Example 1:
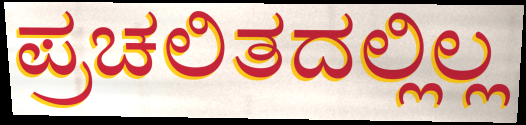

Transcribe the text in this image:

ಪ್ರಚಲಿತದಲ್ಲಿಲ್ಲ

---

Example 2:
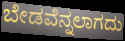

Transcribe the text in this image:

ಬೇಡವೆನ್ನಲಾಗದು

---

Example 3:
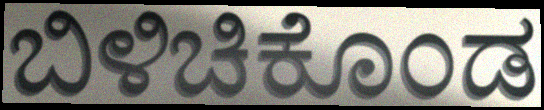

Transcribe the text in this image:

ಬಿಳಿಚಿಕೊಂಡ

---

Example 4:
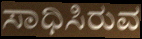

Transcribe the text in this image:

ಸಾಧಿಸಿರುವ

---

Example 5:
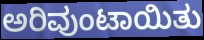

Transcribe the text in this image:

ಅರಿವುಂಟಾಯಿತು